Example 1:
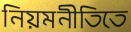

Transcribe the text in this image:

নিয়মনীতিতে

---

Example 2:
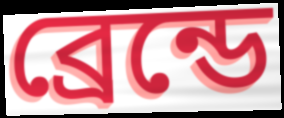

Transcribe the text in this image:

ব্রেন্ডে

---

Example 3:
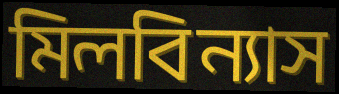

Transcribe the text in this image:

মিলবিন্যাস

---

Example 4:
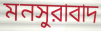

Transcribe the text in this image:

মনসুরাবাদ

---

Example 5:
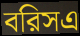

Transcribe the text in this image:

বরিসএ